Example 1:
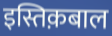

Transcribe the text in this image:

इस्तिक़बाल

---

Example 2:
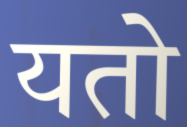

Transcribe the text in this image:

यतो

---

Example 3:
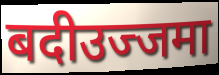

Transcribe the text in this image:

बदीउज्जमा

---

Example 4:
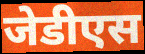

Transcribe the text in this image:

जेडीएस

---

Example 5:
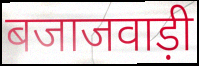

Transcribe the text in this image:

बजाजवाड़ी